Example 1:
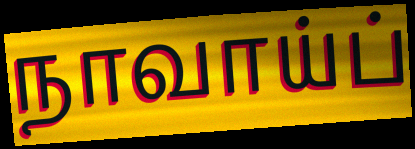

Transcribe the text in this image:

நாவாய்ப்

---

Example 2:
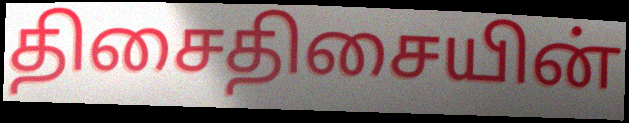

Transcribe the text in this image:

திசைதிசையின்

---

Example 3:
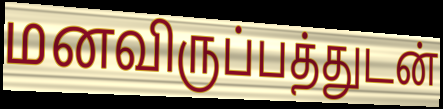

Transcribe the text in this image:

மனவிருப்பத்துடன்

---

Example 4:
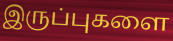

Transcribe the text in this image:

இருப்புகளை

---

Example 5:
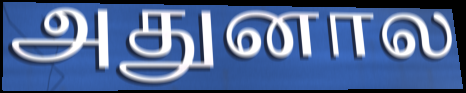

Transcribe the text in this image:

அதுனால